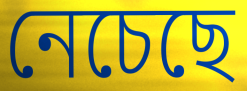
নেচেছে